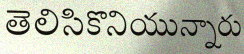
తెలిసికొనియున్నారు